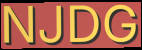
NJDG